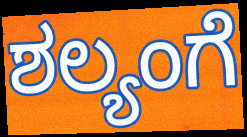
ಶಲ್ಯಂಗೆ